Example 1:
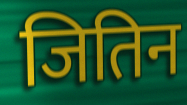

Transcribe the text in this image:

जितिन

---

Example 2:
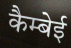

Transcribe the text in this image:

कैम्बेई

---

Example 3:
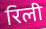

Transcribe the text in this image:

रिली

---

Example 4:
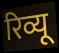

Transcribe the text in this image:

रिव्यू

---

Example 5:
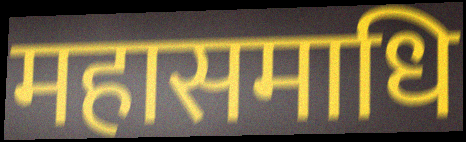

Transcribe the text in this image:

महासमाधि